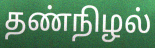
தண்நிழல்